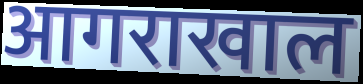
आगराखाल